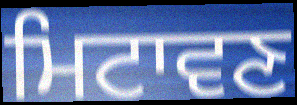
ਮਿਟਾਵਣ